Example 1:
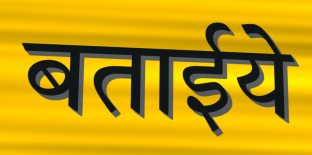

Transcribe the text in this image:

बताईये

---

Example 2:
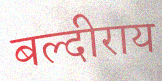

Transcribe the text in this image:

बल्दीराय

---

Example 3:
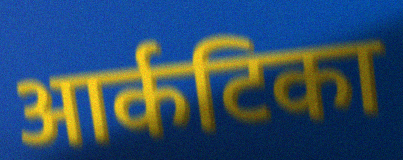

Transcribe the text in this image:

आर्कटिका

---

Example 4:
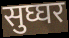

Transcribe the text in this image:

सुघ्घर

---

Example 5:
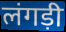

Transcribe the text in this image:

लंगड़ी